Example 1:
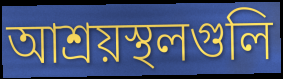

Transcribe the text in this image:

আশ্রয়স্থলগুলি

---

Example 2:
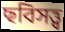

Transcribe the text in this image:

ছবিসত্ত্ব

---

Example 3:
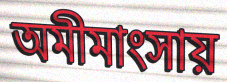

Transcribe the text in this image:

অমীমাংসায়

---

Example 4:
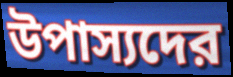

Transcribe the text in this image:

উপাস্যদের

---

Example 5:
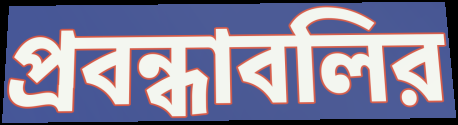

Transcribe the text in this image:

প্রবন্ধাবলির